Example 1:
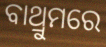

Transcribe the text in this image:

ବାଥ୍ରୁମରେ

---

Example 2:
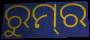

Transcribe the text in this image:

ରୁମ୍‌ର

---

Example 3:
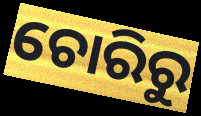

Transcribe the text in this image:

ଚୋରିରୁ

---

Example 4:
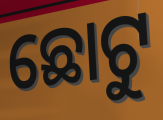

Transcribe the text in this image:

ଛୋଟୁ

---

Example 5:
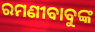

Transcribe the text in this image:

ରମଣୀବାବୁଙ୍କ